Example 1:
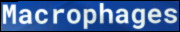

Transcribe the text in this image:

Macrophages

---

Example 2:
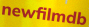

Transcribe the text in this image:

newfilmdb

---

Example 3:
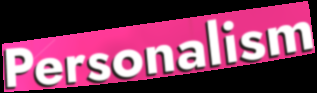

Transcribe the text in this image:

Personalism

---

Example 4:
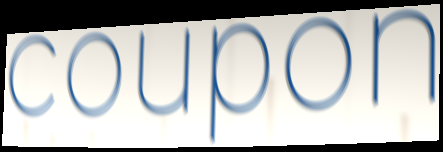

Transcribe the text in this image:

coupon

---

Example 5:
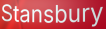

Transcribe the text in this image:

Stansbury